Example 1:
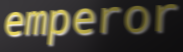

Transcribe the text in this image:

emperor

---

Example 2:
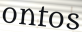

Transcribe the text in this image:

ontos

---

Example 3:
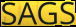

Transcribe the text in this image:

SAGS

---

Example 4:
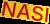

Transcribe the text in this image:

NASI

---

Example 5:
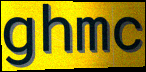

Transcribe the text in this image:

ghmc